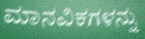
ಮಾನವಿಕಗಳನ್ನು